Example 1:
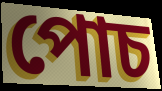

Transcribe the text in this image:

পোচ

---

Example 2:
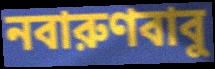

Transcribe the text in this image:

নবারুণবাবু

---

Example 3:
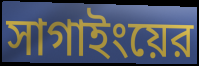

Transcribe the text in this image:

সাগাইংয়ের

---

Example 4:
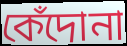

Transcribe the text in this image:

কেঁদোনা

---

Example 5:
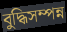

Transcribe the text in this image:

বুদ্ধিসম্পন্ন